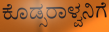
ಕೊಡ್ಸರಾಳ್ವನಿಗೆ